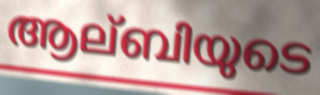
ആല്ബിയുടെ